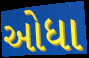
ઓધા